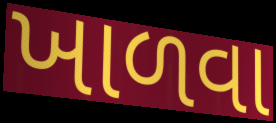
ખાળવા